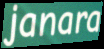
janara